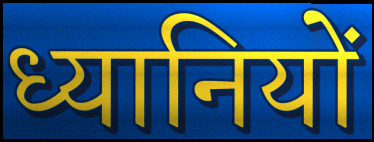
ध्यानियों